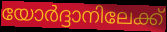
യോർദ്ദാനിലേക്ക്